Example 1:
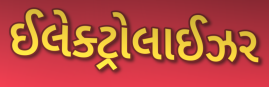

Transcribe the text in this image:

ઈલેક્ટ્રોલાઈઝર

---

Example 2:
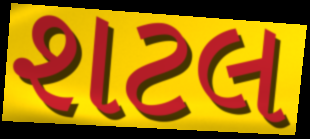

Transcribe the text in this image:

શટલ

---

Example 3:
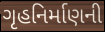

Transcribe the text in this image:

ગૃહનિર્માણની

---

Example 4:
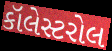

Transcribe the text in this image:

કૉલેસ્ટરોલ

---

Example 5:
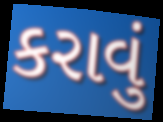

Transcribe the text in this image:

કરાવું